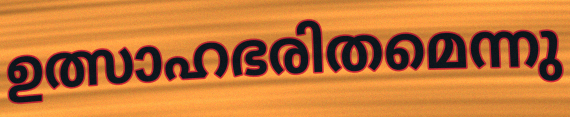
ഉത്സാഹഭരിതമെന്നു